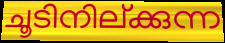
ചൂടിനില്ക്കുന്ന